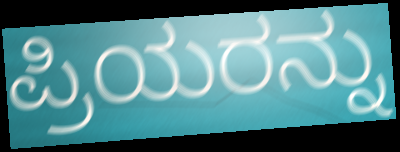
ಪ್ರಿಯರನ್ನು